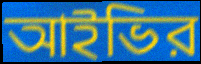
আইভির